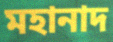
মহানাদ